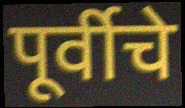
पूर्वीचे